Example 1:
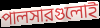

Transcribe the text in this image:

পালসারগুলোই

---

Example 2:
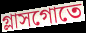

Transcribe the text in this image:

গ্লাসগোতে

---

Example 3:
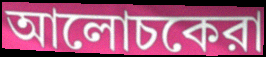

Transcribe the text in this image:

আলোচকেরা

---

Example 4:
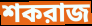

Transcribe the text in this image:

শকরাজ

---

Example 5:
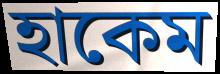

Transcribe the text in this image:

হাকেম